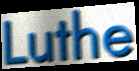
Luthe